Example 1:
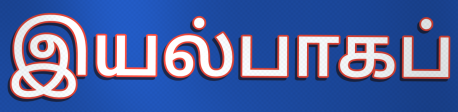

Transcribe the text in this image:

இயல்பாகப்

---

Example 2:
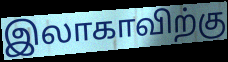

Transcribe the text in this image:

இலாகாவிற்கு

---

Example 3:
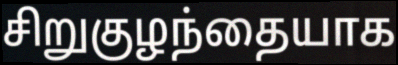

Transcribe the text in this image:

சிறுகுழந்தையாக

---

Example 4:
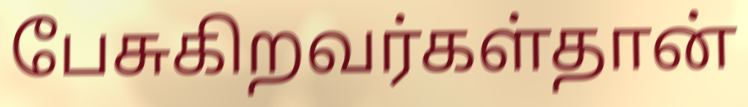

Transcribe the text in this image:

பேசுகிறவர்கள்தான்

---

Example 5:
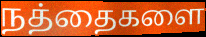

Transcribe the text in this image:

நத்தைகளை